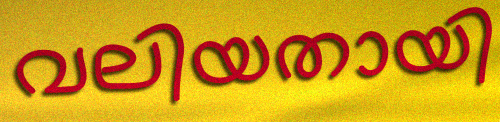
വലിയതായി